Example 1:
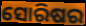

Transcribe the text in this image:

ସୋରିଷର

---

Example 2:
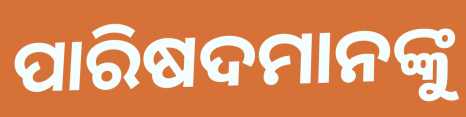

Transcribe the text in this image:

ପାରିଷଦମାନଙ୍କୁ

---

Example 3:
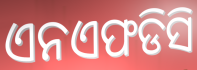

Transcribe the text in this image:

ଏନଏଫଡିସି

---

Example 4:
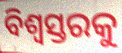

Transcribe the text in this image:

ବିଶ୍ୱସ୍ତରକୁ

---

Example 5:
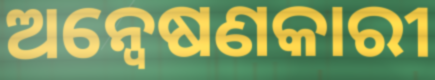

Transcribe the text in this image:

ଅନ୍ୱେଷଣକାରୀ